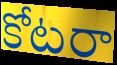
కోటరా